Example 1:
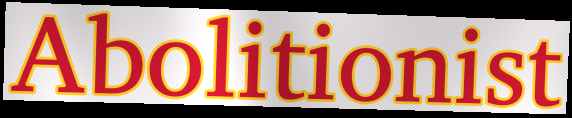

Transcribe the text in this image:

Abolitionist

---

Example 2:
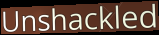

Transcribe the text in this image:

Unshackled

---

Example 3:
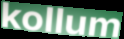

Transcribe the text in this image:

kollum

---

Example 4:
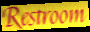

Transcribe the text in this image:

Restroom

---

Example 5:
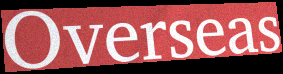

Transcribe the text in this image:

Overseas